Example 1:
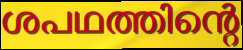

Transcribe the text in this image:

ശപഥത്തിന്റെ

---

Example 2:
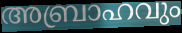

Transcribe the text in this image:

അബ്രാഹവും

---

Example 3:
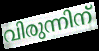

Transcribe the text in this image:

വിരുന്നിന്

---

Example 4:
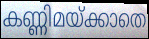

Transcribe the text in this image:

കണ്ണിമയ്ക്കാതെ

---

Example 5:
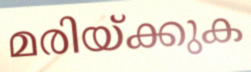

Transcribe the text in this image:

മരിയ്ക്കുക